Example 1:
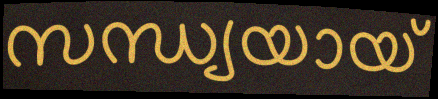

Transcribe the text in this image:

സന്ധ്യയായ്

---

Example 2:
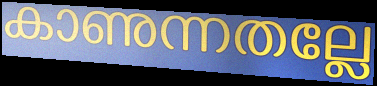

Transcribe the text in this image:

കാണുന്നതല്ലേ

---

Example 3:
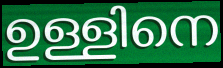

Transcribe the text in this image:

ഉള്ളിനെ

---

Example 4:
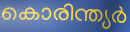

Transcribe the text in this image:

കൊരിന്ത്യർ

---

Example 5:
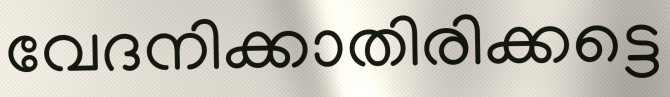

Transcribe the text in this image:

വേദനിക്കാതിരിക്കട്ടെ